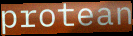
protean